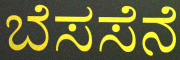
ಬೆಸಸೆನೆ